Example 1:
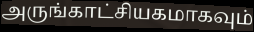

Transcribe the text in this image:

அருங்காட்சியகமாகவும்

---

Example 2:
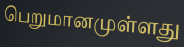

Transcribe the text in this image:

பெறுமானமுள்ளது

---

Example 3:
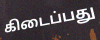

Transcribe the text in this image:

கிடைப்பது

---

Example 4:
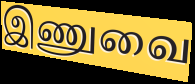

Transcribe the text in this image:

இணுவை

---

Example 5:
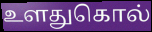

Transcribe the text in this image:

உளதுகொல்